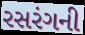
રસરંગની